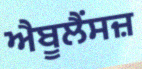
ਐਬੂਲੈਂਸਜ਼